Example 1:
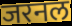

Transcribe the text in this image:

जरनल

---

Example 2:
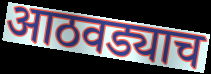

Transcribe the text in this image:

आठवड्याच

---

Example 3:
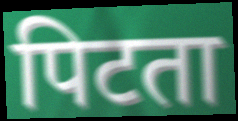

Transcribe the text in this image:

पिटता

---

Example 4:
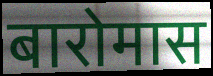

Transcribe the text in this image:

बारोमास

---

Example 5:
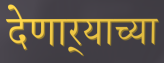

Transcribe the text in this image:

देणार्याच्या